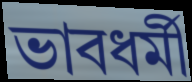
ভাবধর্মী